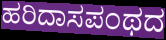
ಹರಿದಾಸಪಂಥದ